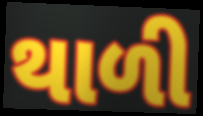
થાળી